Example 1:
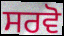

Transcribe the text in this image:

ਸਰਵੋ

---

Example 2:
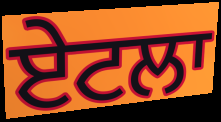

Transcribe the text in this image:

ਏਟਲਾ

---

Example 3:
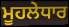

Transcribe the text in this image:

ਮੂਹਲੇਧਾਰ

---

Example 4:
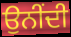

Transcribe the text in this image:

ਉਨੀਂਦੀ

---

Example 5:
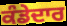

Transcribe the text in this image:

ਕੰਡੇਦਾਰ